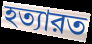
হত্যারত